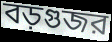
বড়গুজর